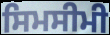
ਸਿਮਸੀਮੀ